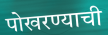
पोखरण्याची